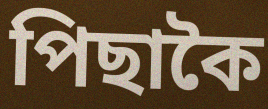
পিছাকৈ